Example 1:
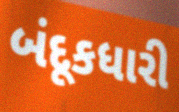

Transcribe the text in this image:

બંદૂકધારી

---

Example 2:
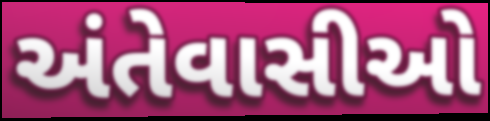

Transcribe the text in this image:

અંતેવાસીઓ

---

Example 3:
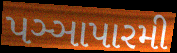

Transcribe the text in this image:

પઞ્ઞાપારમી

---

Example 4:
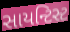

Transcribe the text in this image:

સાયન્ટિસ્ટ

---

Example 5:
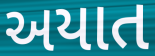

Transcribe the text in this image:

અયાત